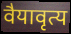
वैयावृत्य